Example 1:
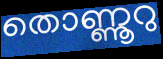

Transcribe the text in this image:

തൊണ്ണൂറു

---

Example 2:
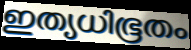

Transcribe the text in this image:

ഇത്യധിഭൂതം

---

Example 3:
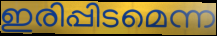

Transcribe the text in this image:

ഇരിപ്പിടമെന്ന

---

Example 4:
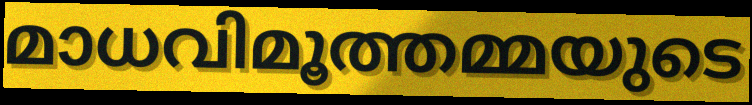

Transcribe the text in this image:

മാധവിമൂത്തമ്മയുടെ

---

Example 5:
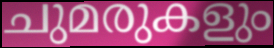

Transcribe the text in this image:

ചുമരുകളും